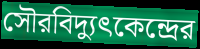
সৌরবিদ্যুৎকেন্দ্রের